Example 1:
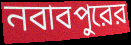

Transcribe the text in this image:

নবাবপুরের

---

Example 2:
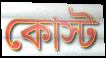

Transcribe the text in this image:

কোস্ট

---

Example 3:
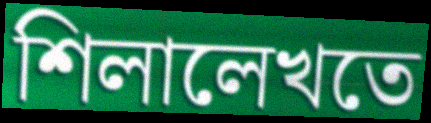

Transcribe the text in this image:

শিলালেখতে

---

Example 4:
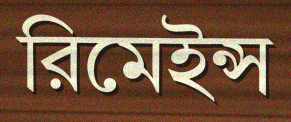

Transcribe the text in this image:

রিমেইন্স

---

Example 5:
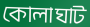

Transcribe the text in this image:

কোলাঘাট